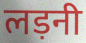
लड़नी